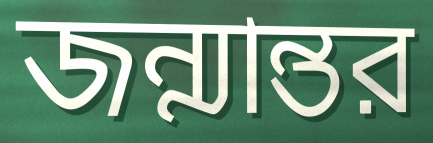
জন্মান্তর